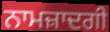
ਨਾਮਜ਼ਾਦਗੀ